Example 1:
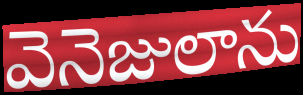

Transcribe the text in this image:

వెనెజులాను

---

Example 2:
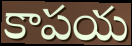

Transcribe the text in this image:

కాపయ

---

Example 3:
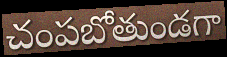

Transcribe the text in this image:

చంపబోతుండగా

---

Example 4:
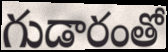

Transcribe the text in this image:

గుడారంతో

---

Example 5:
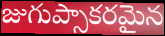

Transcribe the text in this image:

జుగుప్సాకరమైన